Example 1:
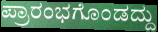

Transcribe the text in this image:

ಪ್ರಾರಂಭಗೊಂಡದ್ದು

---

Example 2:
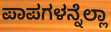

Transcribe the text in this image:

ಪಾಪಗಳನ್ನೆಲ್ಲಾ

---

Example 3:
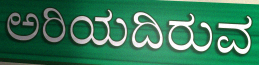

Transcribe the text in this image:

ಅರಿಯದಿರುವ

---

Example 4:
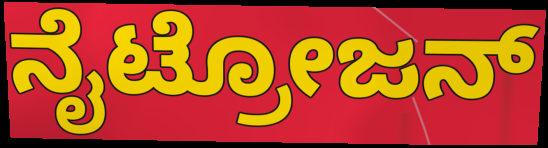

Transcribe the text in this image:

ನೈಟ್ರೋಜನ್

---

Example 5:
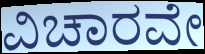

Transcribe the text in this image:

ವಿಚಾರವೇ